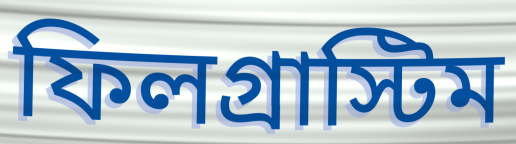
ফিলগ্রাস্টিম